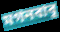
মগনবাবু